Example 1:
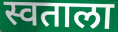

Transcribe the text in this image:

स्वताला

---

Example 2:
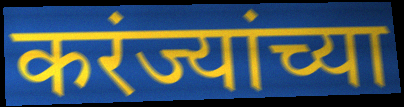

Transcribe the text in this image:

करंज्यांच्या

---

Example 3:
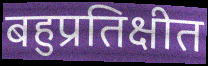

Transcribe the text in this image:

बहुप्रतिक्षीत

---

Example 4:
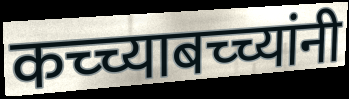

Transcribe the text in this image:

कच्च्याबच्च्यांनी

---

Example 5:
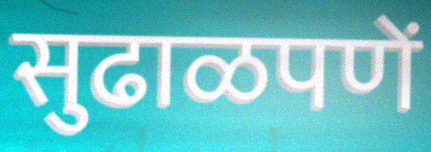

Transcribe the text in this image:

सुढाळपणें